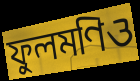
ফুলমণিও